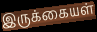
இருக்கையள்